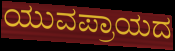
ಯುವಪ್ರಾಯದ